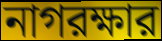
নাগরক্ষার